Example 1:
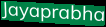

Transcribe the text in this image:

Jayaprabha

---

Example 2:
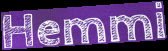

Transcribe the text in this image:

Hemmi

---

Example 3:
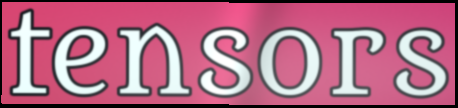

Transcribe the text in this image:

tensors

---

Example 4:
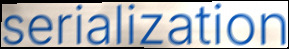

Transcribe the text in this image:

serialization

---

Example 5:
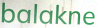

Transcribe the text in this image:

balakne